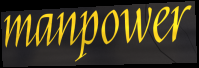
manpower